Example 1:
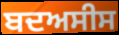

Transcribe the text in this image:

ਬਦਅਸੀਸ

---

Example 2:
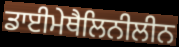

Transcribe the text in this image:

ਡਾਈਮੇਥੈਲਿਨੀਲੀਨ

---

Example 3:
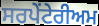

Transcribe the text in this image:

ਸਰਪੇਂਟੇਰੀਅਮ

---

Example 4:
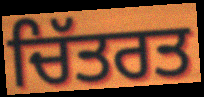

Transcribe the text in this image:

ਚਿੱਤਰਤ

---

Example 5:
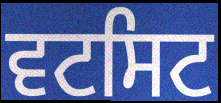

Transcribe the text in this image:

ਵਟਸਿਟ